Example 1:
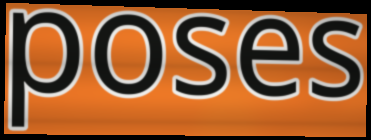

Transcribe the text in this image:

poses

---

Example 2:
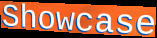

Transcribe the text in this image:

Showcase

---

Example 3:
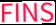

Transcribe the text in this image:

FINS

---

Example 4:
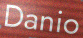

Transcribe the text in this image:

Danio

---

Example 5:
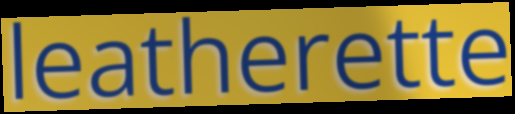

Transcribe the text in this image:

leatherette